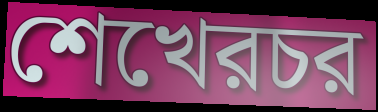
শেখেরচর